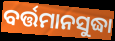
ବର୍ତ୍ତମାନସୁଦ୍ଧା